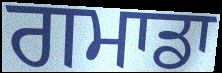
ਗਮਾਡਾ